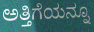
ಅತ್ತಿಗೆಯನ್ನೂ